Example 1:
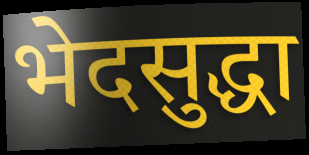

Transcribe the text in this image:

भेदसुद्धा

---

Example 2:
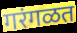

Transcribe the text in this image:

गरंगळत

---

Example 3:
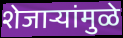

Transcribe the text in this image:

शेजाऱ्यांमुळे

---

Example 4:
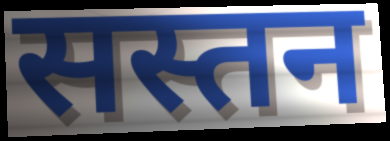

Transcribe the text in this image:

सस्तन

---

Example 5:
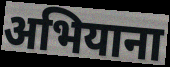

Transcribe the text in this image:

अभियाना